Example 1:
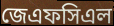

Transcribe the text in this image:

জেএফসিএল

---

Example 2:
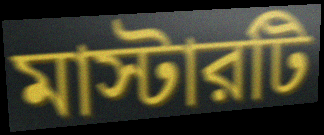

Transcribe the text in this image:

মাস্টারটি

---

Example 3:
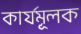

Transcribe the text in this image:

কার্যমূলক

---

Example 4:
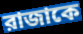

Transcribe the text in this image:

রাজাকে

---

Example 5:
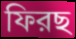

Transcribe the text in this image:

ফিরছ